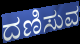
ದಣಿಸುವ